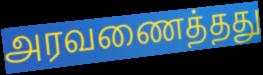
அரவணைத்தது